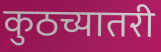
कुठच्यातरी